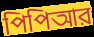
পিপিআর